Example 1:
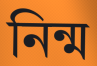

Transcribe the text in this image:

নিন্ম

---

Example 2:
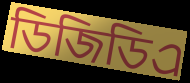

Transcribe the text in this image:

ডিজিডিএ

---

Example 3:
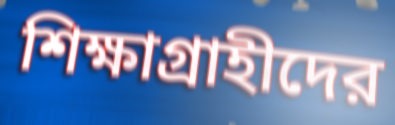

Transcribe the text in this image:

শিক্ষাগ্রাহীদের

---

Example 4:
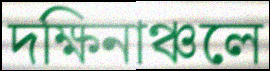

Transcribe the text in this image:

দক্ষিনাঞ্চলে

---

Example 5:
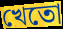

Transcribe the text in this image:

খেতো